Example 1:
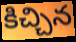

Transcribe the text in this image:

కిచ్చిన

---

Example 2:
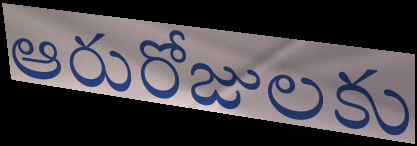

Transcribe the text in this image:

ఆరురోజులకు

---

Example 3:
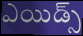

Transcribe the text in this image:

ఎయిడ్స్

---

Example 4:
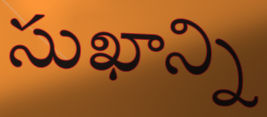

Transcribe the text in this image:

సుఖాన్ని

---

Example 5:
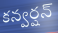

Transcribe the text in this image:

కన్వర్షన్